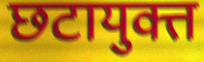
छटायुक्त